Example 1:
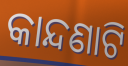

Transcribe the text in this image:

କାନ୍ଦଣାଟି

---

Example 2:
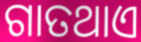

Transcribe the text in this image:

ଗାତଥାଏ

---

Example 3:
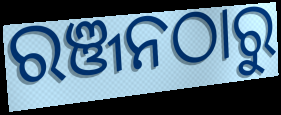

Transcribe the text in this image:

ରଞ୍ଜନଠାରୁ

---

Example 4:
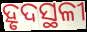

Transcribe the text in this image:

ହୃଦସ୍ଥଳୀ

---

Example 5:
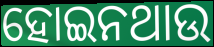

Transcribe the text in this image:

ହୋଇନଥାଉ